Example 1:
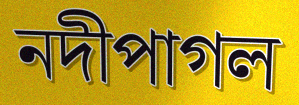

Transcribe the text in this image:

নদীপাগল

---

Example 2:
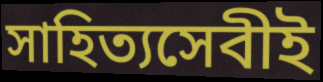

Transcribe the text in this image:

সাহিত্যসেবীই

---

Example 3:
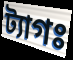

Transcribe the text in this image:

ট্যাগঃ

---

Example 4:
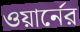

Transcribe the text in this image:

ওয়ার্নের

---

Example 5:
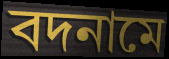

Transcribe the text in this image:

বদনামে